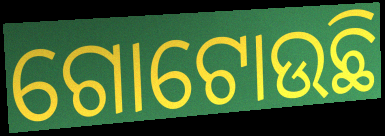
ଗୋଟୋଉଛି